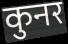
कुनर